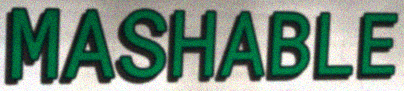
MASHABLE